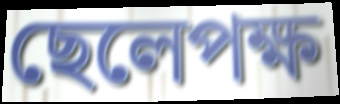
ছেলেপক্ষ